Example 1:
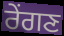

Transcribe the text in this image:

ਰੇਂਗਣ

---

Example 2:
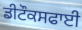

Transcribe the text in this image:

ਡੀਟੌਕਸਫਾਈ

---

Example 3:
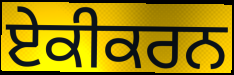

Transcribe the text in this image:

ਏਕੀਕਰਨ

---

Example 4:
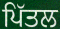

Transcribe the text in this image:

ਪਿੱਤਲ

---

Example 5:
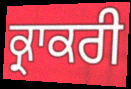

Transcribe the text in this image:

ਕ੍ਰਾਕਰੀ